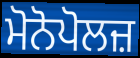
ਮੋਨੋਪੋਲਜ਼